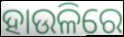
ହାଉଳିରେ